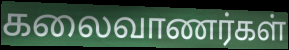
கலைவாணர்கள்